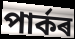
পাৰ্কৰ